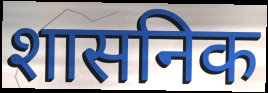
शासनिक